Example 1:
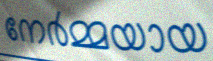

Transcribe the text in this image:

നേർമ്മയായ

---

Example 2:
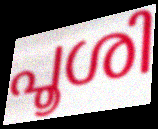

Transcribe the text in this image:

പൂശി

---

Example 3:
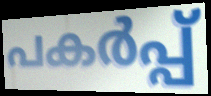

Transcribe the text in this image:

പകർപ്പ്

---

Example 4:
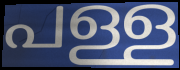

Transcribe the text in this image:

പള്ള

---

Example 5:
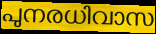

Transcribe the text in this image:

പുനരധിവാസ